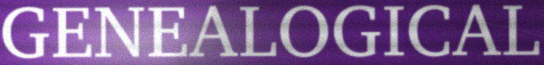
GENEALOGICAL